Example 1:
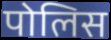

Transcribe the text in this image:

पोलिस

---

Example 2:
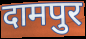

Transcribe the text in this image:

दामपुर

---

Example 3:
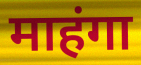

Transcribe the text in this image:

माहंगा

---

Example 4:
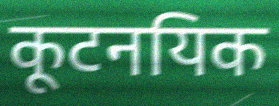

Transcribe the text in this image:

कूटनयिक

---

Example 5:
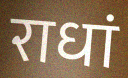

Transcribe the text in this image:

राधां